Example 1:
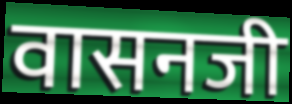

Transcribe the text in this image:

वासनजी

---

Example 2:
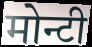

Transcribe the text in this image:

मोन्टी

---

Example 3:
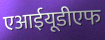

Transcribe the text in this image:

एआईयूडीएफ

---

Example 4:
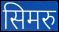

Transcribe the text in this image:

सिमरु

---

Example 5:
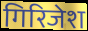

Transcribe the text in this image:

गिरिजेश